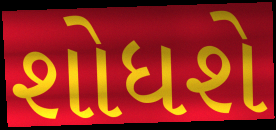
શોધશે